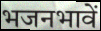
भजनभावें